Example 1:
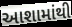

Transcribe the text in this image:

આશામાંથી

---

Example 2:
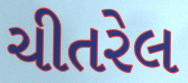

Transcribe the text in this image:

ચીતરેલ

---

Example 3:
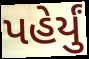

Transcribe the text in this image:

પહેર્યું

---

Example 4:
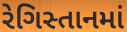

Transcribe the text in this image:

રેગિસ્તાનમાં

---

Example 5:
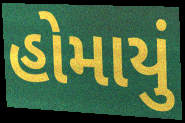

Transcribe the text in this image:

હોમાયું